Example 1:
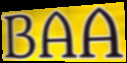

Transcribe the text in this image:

BAA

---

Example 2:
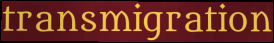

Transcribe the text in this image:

transmigration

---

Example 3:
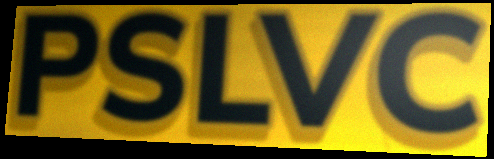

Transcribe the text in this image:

PSLVC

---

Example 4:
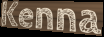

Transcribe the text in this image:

Kenna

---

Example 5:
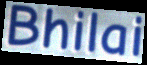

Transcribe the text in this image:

Bhilai